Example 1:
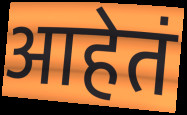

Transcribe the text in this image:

आहेतं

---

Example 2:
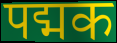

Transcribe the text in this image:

पद्मक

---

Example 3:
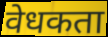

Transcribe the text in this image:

वेधकता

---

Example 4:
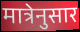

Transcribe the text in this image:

मात्रेनुसार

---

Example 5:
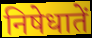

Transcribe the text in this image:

निषेधातें